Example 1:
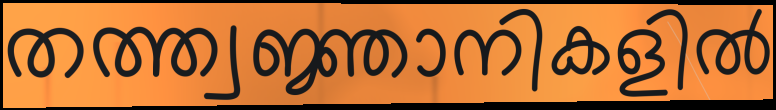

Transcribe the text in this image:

തത്ത്വജ്ഞാനികളിൽ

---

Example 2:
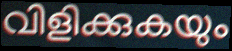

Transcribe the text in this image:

വിളിക്കുകയും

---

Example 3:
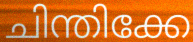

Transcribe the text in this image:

ചിന്തിക്കേ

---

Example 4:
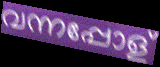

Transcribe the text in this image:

വന്നപ്പോള്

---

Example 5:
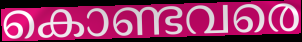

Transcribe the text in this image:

കൊണ്ടവരെ